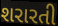
શરારતી